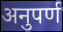
अनुपर्ण